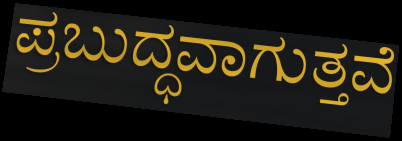
ಪ್ರಬುದ್ಧವಾಗುತ್ತವೆ